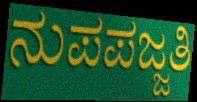
ನುಪಪಜ್ಜತಿ